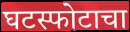
घटस्फोटाचा